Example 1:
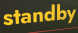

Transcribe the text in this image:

standby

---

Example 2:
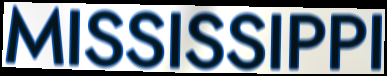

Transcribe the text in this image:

MISSISSIPPI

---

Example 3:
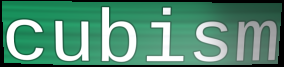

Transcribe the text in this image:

cubism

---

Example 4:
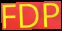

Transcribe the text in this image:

FDP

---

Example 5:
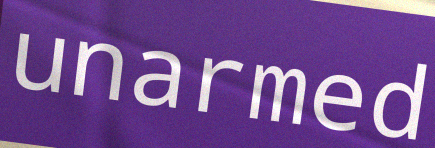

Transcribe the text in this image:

unarmed